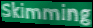
Skimming